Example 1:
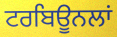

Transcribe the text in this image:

ਟਰਬਿਊਨਲਾਂ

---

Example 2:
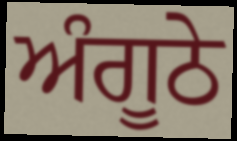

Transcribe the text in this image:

ਅੰਗੂਠੇ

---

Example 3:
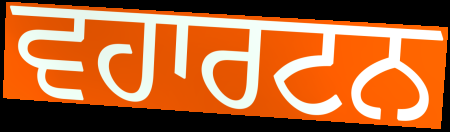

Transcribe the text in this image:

ਵਹਾਰਟਨ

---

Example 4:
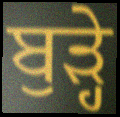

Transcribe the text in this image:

ਬੁੜ੍ਹੇ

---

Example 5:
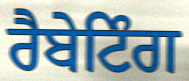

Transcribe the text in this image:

ਰੈਬੇਟਿੰਗ